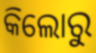
କିଲୋରୁ